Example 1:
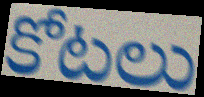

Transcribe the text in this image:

కోటలు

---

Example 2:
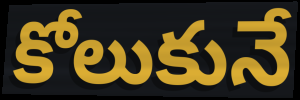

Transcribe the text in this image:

కోలుకునే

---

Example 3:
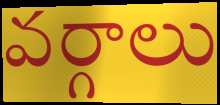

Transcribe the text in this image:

వర్గాలు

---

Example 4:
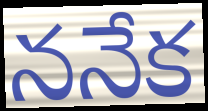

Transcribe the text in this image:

ననేక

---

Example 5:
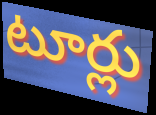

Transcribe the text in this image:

టూర్లు